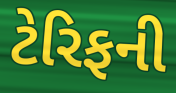
ટેરિફની